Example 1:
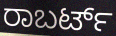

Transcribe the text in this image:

ರಾಬರ್ಟ್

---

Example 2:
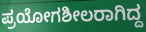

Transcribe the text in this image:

ಪ್ರಯೋಗಶೀಲರಾಗಿದ್ದ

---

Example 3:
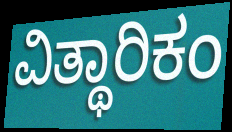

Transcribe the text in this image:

ವಿತ್ಥಾರಿಕಂ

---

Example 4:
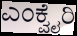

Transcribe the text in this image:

ಎಂಕ್ವೈರಿ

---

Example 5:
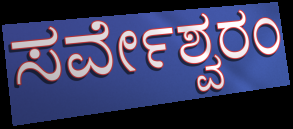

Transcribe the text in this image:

ಸರ್ವೇಶ್ವರಂ